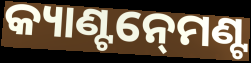
କ୍ୟାଣ୍ଟନ୍‍ମେଣ୍ଟ